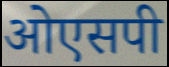
ओएसपी